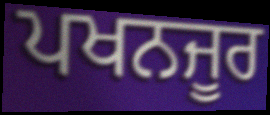
ਪਖਨਜੂਰ